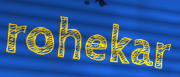
rohekar